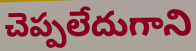
చెప్పలేదుగాని